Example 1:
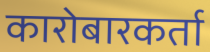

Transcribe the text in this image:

कारोबारकर्ता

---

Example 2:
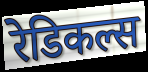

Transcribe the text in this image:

रेडिकल्स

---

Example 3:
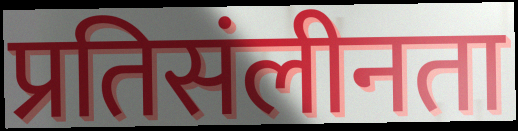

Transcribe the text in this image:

प्रतिसंलीनता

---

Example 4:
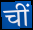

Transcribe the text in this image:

चीं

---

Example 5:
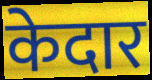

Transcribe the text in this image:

केदार